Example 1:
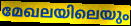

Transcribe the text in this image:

മേഖലയിലെയും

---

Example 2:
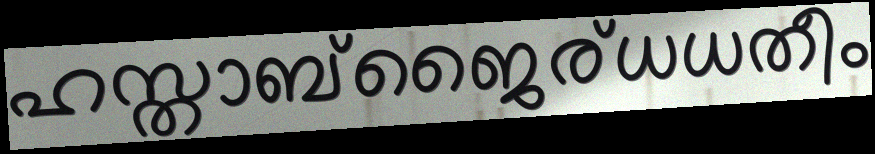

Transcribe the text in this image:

ഹസ്താബ്ജൈര്ധധതീം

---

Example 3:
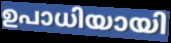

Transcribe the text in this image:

ഉപാധിയായി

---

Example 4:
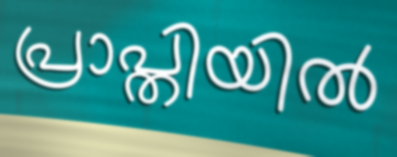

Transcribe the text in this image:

പ്രാപ്തിയിൽ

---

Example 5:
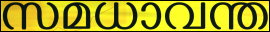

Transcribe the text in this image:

സമധാവന്ത